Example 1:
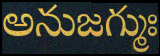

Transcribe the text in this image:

అనుజగ్ముః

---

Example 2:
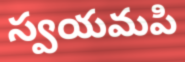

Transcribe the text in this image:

స్వయమపి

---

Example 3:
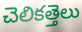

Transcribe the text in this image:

చెలికత్తెలు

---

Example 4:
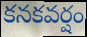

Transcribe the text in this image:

కనకవర్షం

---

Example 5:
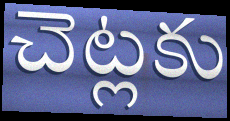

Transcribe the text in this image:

చెట్లకు